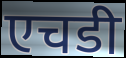
एचडी